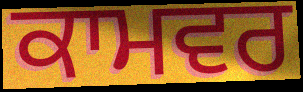
ਕਾਮਵਰ